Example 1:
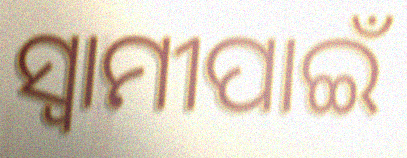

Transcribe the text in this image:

ସ୍ୱାମୀପାଇଁ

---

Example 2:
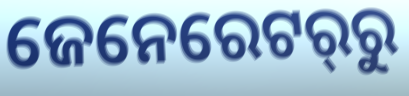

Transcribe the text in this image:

ଜେନେରେଟର୍‌ରୁ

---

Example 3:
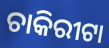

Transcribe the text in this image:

ଚାକିରୀଟା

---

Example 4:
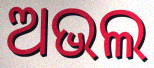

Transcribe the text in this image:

ଅଭଲ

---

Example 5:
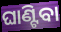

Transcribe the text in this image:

ଘାଣ୍ଟିବା